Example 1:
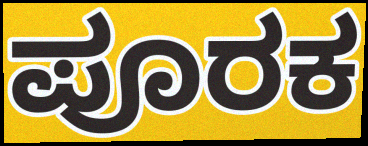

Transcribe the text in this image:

ಪೂರಕ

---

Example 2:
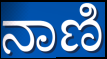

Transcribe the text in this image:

ನಾಣಿ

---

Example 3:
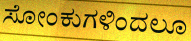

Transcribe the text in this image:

ಸೋಂಕುಗಳಿಂದಲೂ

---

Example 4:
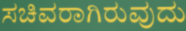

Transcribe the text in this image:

ಸಚಿವರಾಗಿರುವುದು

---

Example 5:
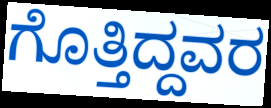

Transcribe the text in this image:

ಗೊತ್ತಿದ್ದವರ